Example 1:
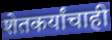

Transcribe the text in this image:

शेतकर्यांचाही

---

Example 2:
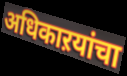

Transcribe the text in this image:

अधिकाऱयांचा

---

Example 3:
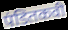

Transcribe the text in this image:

पंडितकवी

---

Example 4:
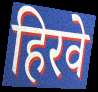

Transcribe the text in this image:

हिरवे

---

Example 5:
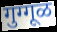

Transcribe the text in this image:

गुग्गूळ